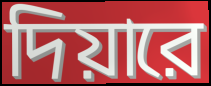
দিয়ারে